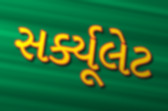
સર્ક્યૂલેટ